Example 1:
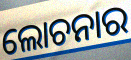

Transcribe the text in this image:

ଲୋଚନାର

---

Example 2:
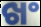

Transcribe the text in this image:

ଖଂ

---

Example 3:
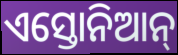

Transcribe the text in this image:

ଏସ୍ତୋନିଆନ୍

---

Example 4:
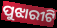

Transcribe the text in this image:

ପୁଝାରୀଟି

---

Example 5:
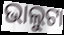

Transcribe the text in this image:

ଭାଲୁଟା